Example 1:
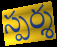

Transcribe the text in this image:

స్పర్శ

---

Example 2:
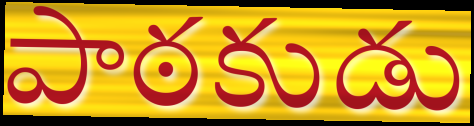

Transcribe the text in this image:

పాఠకుడు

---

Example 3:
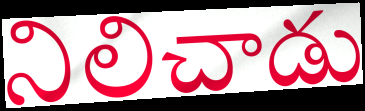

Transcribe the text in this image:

నిలిచాడు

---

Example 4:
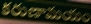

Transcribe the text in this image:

కరుణామయం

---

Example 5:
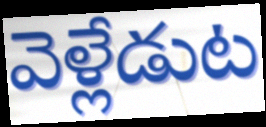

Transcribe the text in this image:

వెళ్లేడుట